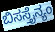
ಬಿಸಸ್ತೈನ್ಯಂ